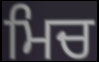
ਮਿਚ